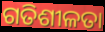
ଗତିଶୀଳତା